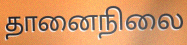
தானைநிலை